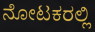
ನೋಟಕರಲ್ಲಿ